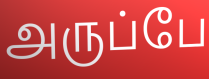
அருப்பே